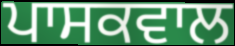
ਪਾਸਕਵਾਲ